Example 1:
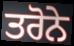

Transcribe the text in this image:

ਤਰੋਨੇ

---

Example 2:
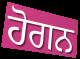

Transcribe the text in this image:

ਹੋਗਨ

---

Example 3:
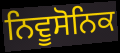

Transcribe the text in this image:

ਨਿਵੂਸੋਨਿਕ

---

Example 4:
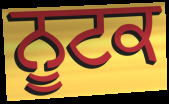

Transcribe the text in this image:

ਨੂਟਕ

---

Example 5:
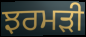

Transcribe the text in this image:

ਝਰਮੜੀ